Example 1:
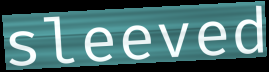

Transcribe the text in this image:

sleeved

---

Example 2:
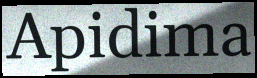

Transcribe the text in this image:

Apidima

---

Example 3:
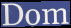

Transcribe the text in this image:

Dom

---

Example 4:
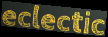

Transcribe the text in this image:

eclectic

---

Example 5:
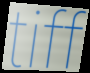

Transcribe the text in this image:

tiff